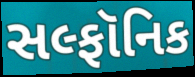
સલ્ફૉનિક